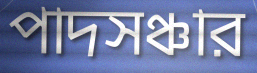
পাদসঞ্চার